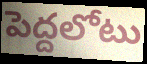
పెద్దలోటు